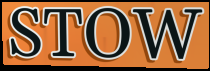
STOW